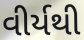
વીર્યથી